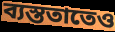
ব্যস্ততাতেও